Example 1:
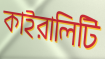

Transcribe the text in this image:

কাইরালিটি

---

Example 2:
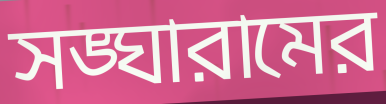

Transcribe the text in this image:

সঙ্ঘারামের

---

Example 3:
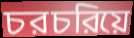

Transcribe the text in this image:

চরচরিয়ে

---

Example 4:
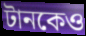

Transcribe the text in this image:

টানকেও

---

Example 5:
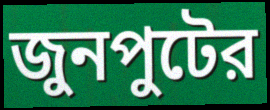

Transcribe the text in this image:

জুনপুটের